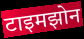
टाइमझोन